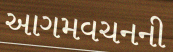
આગમવચનની